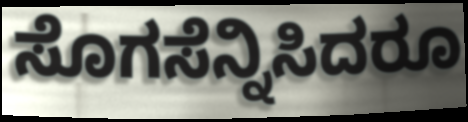
ಸೊಗಸೆನ್ನಿಸಿದರೂ